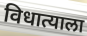
विधात्याला